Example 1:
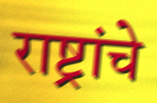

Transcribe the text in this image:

राष्ट्रांचे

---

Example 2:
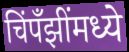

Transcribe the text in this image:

चिंपँझींमध्ये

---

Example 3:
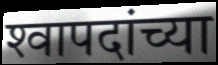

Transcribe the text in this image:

श्‍वापदांच्या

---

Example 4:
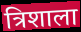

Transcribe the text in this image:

त्रिशाला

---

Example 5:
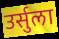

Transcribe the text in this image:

उर्सुला